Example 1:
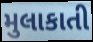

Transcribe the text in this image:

મુલાકાતી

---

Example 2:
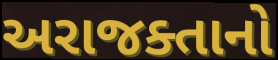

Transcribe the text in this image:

અરાજક્તાનો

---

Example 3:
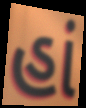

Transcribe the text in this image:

હાં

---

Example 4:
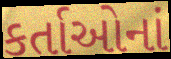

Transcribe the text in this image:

કર્તાઓનાં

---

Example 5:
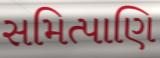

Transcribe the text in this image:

સમિત્પાણિ